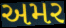
અમર